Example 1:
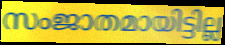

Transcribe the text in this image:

സംജാതമായിട്ടില്ല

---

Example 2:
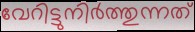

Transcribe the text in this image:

വേറിട്ടുനിർത്തുന്നത്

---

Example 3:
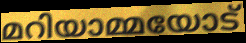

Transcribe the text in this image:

മറിയാമ്മയോട്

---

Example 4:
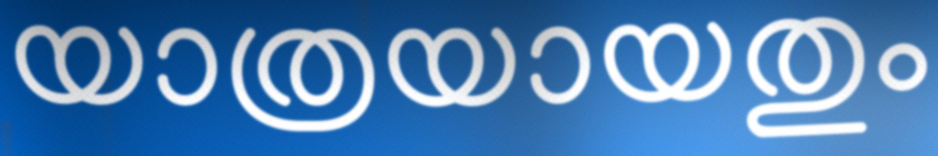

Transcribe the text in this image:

യാത്രയായതും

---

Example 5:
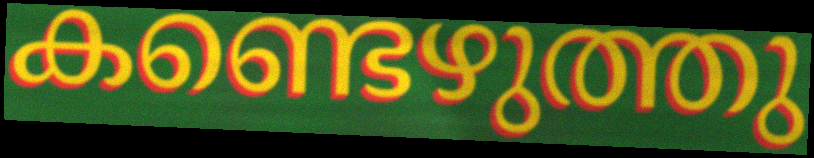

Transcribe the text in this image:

കണ്ടെഴുത്തു